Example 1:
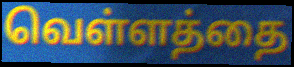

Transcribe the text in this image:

வெள்ளத்தை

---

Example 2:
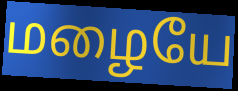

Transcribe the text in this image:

மழையே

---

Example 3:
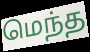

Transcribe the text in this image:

மெந்த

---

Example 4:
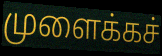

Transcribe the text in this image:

முளைக்கச்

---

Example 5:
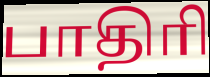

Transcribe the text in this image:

பாதிரி